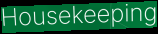
Housekeeping